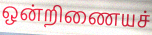
ஒன்றிணையச்